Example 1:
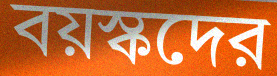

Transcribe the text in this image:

বয়স্কদের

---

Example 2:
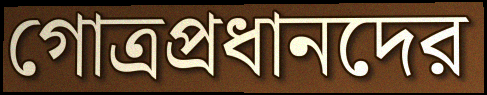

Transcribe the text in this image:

গোত্রপ্রধানদের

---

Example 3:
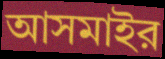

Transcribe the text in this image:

আসমাইর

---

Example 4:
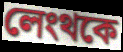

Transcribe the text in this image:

লেংথকে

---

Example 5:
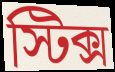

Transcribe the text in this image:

স্টিক্স